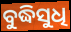
ବୁଦ୍ଧିସୁଧି